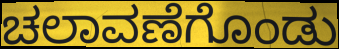
ಚಲಾವಣೆಗೊಂಡು